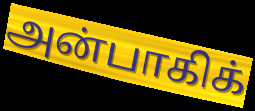
அன்பாகிக்